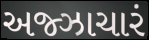
અજ્ઝાચારં